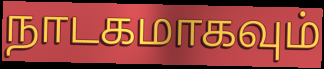
நாடகமாகவும்